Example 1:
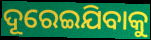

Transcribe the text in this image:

ଦୂରେଇଯିବାକୁ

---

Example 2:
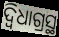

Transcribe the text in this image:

ଦ୍ବିଧାଗ୍ରସ୍ଥ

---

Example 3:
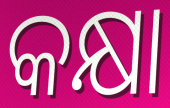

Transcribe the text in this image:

କକ୍ଷା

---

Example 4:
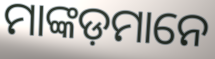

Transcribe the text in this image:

ମାଙ୍କଡ଼ମାନେ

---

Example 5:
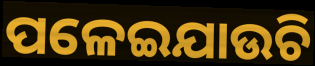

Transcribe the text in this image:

ପଳେଇଯାଉଚି